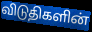
விடுதிகளின்